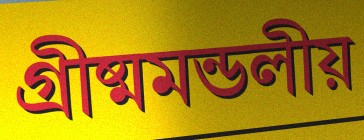
গ্রীষ্মমন্ডলীয়